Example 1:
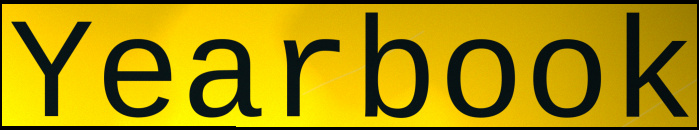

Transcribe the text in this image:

Yearbook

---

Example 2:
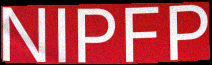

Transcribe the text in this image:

NIPFP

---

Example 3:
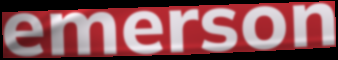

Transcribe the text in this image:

emerson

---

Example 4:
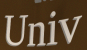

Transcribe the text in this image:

Univ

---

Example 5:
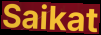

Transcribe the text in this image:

Saikat